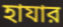
হাযার